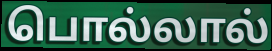
பொல்லால்